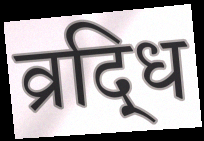
व्रद्धि